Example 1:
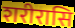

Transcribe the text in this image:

शरीरासि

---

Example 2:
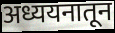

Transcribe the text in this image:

अध्ययनातून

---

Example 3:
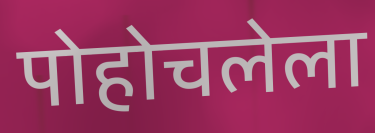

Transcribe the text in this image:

पोहोचलेला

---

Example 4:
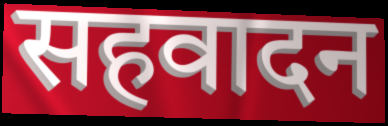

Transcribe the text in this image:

सहवादन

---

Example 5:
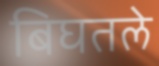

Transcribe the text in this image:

बिघतले